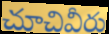
చూచివీరు